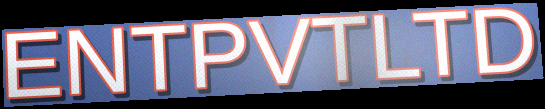
ENTPVTLTD